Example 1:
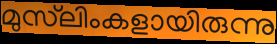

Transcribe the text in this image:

മുസ്‌ലിംകളായിരുന്നു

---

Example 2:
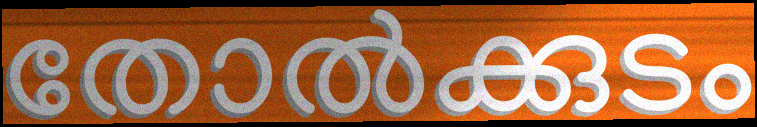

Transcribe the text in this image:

തോൽക്കുടം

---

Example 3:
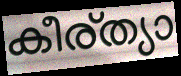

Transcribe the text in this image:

കീര്ത്യാ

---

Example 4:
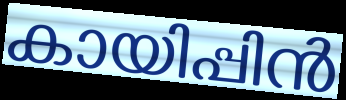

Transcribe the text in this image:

കായിപ്പിൻ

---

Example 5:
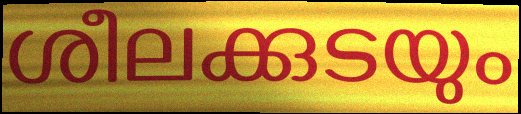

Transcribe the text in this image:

ശീലക്കുടയും